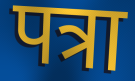
पत्रा